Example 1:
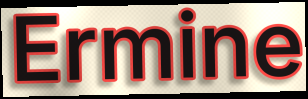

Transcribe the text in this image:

Ermine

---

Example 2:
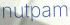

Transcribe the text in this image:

nutpam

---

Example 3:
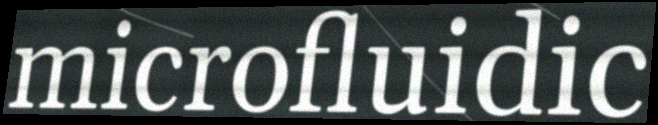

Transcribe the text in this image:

microfluidic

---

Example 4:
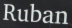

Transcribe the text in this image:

Ruban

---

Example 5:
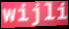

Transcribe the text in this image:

wijli